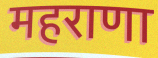
महराणा